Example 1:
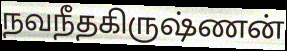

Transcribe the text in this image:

நவநீதகிருஷ்ணன்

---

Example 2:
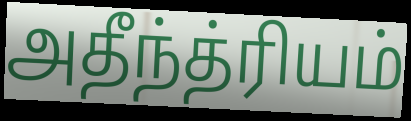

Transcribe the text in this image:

அதீந்த்ரியம்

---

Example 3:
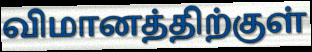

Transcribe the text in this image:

விமானத்திற்குள்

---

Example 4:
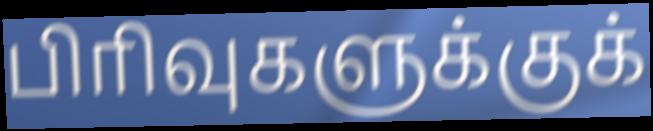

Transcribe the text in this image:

பிரிவுகளுக்குக்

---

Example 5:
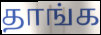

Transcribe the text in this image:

தாங்க